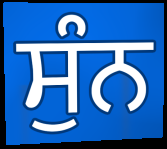
ਸੁੰਨ